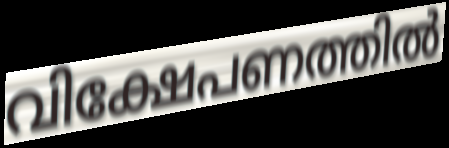
വിക്ഷേപണത്തിൽ